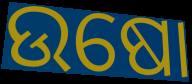
ଉଷୋ